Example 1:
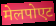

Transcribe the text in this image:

मेलपोएट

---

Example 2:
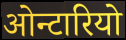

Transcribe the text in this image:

ओन्टारियो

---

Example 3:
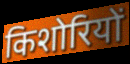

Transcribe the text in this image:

किशोरियों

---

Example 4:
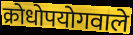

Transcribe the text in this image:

क्रोधोपयोगवाले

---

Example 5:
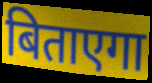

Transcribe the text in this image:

बिताएगा